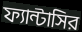
ফ্যান্টাসির